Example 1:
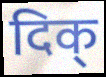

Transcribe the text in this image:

दिक्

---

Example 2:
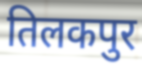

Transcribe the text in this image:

तिलकपुर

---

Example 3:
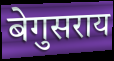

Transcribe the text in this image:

बेगुसराय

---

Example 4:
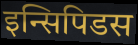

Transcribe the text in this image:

इन्सिपिडस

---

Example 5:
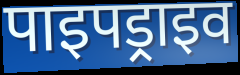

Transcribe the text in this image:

पाइपड्राइव